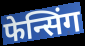
फेन्सिंग